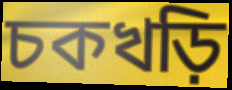
চকখড়ি